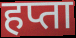
हप्ता